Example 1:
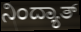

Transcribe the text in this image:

ನಿಂದ್ಯಾತ್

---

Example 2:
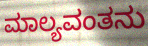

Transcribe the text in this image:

ಮಾಲ್ಯವಂತನು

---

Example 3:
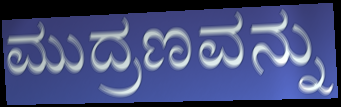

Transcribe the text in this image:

ಮುದ್ರಣವನ್ನು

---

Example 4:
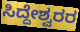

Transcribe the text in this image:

ಸಿದ್ದೇಶ್ವರರ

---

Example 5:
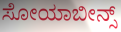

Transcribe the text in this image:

ಸೋಯಾಬೀನ್ಸ್